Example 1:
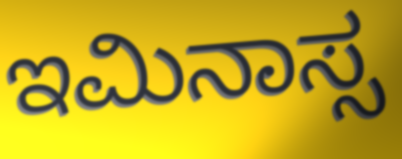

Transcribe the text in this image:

ಇಮಿನಾಸ್ಸ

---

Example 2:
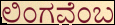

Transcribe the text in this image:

ಲಿಂಗವೆಂಬ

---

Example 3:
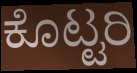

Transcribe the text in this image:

ಕೊಟ್ಟರಿ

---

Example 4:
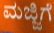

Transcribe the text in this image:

ಮಜ್ಜಿಗೆ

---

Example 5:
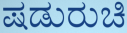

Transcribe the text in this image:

ಷಡುರುಚಿ